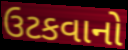
ઉટકવાનો